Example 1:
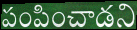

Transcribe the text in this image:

పంపించాడని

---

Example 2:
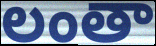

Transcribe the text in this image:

లంతా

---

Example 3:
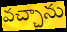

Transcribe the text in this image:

వచ్చాను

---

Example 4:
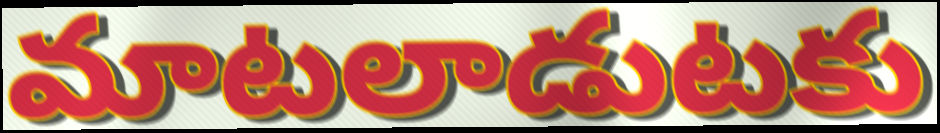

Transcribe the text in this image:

మాటలాడుటకు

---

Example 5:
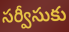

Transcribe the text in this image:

సర్వీసుకు